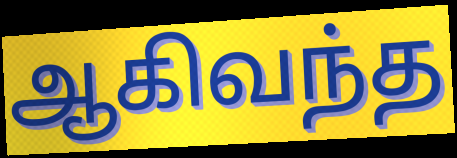
ஆகிவந்த